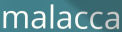
malacca